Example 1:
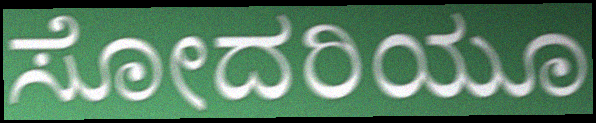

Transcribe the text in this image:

ಸೋದರಿಯೂ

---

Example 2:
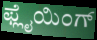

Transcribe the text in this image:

ಫ್ಲೈಯಿಂಗ್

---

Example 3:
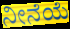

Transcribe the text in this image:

ನೀನೆಯೆ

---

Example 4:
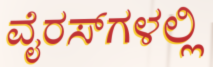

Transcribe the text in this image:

ವೈರಸ್‌ಗಳಲ್ಲಿ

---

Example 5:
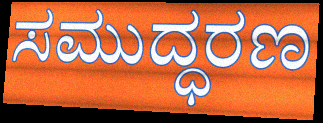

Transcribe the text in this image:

ಸಮುದ್ಧರಣ